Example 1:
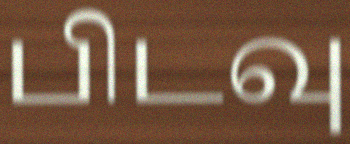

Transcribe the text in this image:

பிடவு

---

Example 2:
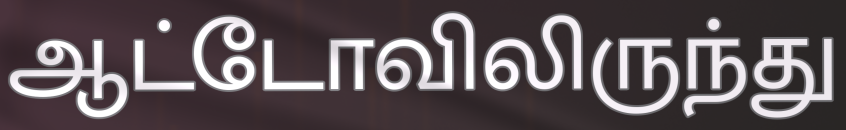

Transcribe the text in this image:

ஆட்டோவிலிருந்து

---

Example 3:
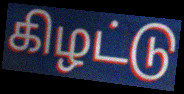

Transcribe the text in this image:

கிழட்டு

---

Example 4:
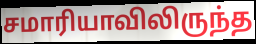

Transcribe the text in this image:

சமாரியாவிலிருந்த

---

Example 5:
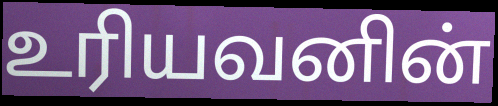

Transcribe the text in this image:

உரியவனின்